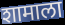
शामाला